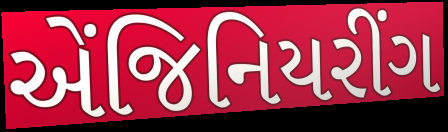
એંજિનિયરીંગ